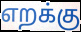
எறக்கு